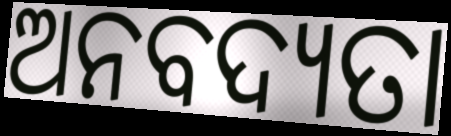
ଅନବଦ୍ୟତା